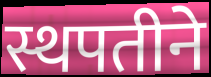
स्थपतीने